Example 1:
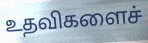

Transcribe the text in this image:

உதவிகளைச்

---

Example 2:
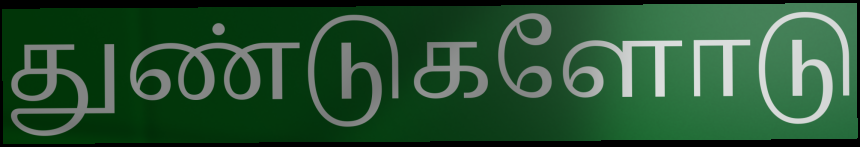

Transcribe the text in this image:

துண்டுகளோடு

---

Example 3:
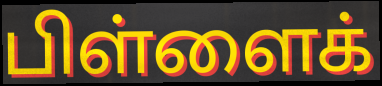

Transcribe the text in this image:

பிள்ளைக்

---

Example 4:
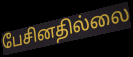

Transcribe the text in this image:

பேசினதில்லை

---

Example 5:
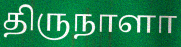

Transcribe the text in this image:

திருநாளா